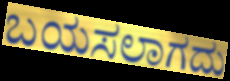
ಬಯಸಲಾಗದು